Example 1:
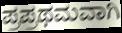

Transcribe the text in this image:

ಪ್ರಪ್ರಥಮವಾಗಿ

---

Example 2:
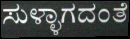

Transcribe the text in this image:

ಸುಳ್ಳಾಗದಂತೆ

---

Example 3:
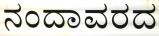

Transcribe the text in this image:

ನಂದಾವರದ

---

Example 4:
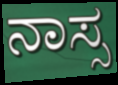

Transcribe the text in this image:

ನಾಸ್ಸ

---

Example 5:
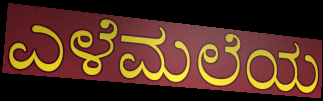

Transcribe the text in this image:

ಎಳೆಮಲೆಯ